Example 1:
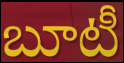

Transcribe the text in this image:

బూటీ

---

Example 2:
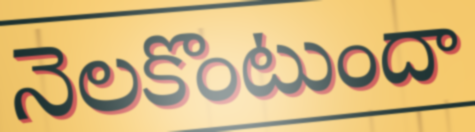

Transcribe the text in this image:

నెలకొంటుందా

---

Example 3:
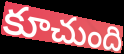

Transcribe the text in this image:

కూచుంది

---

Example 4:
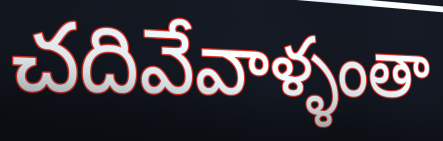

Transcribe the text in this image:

చదివేవాళ్ళంతా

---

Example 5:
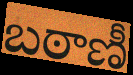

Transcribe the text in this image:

బఠాణీ